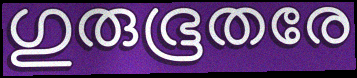
ഗുരുഭൂതരേ